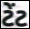
ટેંટ